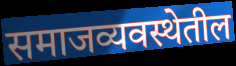
समाजव्यवस्थेतील